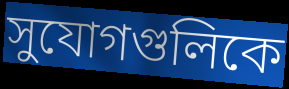
সুযোগগুলিকে